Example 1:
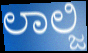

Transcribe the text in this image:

ಲಾಲ್ಜಿ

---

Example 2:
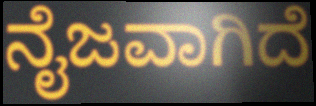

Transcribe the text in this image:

ನೈಜವಾಗಿದೆ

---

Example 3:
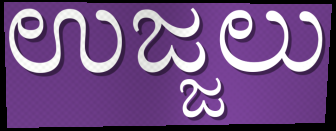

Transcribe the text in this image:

ಉಜ್ಜಲು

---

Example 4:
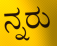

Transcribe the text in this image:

ನ್ನರು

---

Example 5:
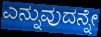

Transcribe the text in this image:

ಎನ್ನುವುದನ್ನೇ